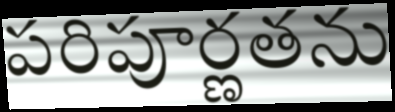
పరిపూర్ణతను